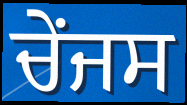
ਚੇਂਜਸ